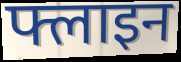
फ्लाइन